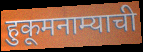
हुकूमनाम्याची